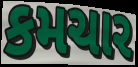
કમચાર